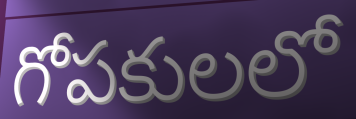
గోపకులలో